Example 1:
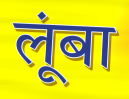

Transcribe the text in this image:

लूंबा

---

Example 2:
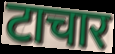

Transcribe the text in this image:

टाचार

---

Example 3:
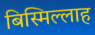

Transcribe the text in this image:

बिस्मिल्‍लाह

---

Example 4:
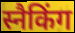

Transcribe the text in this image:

स्नैकिंग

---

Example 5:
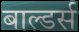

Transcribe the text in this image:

बाल्डर्स